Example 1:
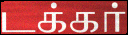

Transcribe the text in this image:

டக்கர்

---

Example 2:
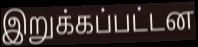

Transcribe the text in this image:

இறுக்கப்பட்டன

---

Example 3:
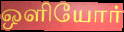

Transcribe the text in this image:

ஒளியோர்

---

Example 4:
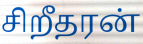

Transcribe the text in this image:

சிறீதரன்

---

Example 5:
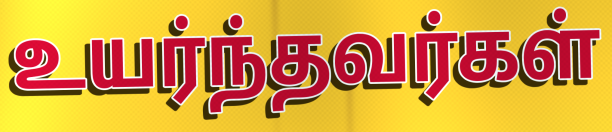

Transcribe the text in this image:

உயர்ந்தவர்கள்